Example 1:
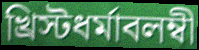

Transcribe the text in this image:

খ্রিস্টধর্মাবলম্বী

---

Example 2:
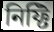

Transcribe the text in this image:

নিফ্টি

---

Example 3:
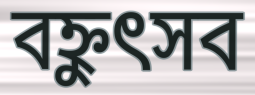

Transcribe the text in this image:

বহ্নুৎসব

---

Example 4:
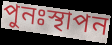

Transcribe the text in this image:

পুনঃস্থাপন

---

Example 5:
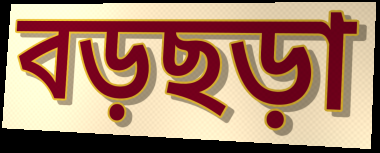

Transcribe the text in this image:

বড়ছড়া